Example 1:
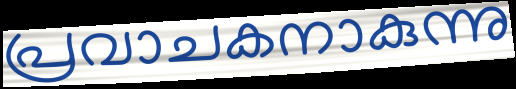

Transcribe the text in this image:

പ്രവാചകനാകുന്നു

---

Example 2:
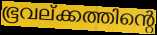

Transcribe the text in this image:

ഭൂവല്ക്കത്തിന്റെ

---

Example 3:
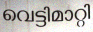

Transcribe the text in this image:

വെട്ടിമാറ്റി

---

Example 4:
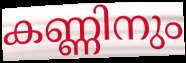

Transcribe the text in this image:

കണ്ണിനും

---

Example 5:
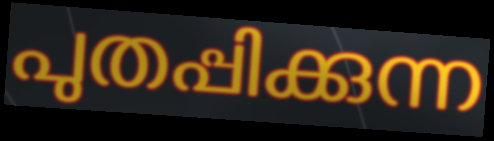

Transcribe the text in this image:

പുതപ്പിക്കുന്ന